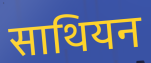
साथियन